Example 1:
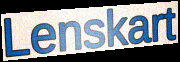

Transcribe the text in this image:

Lenskart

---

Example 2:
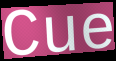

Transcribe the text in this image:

Cue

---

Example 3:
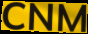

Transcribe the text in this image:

CNM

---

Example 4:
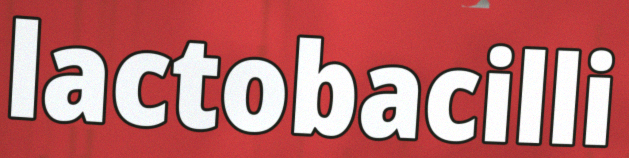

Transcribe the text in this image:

lactobacilli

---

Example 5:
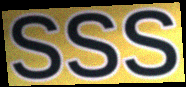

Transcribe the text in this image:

sss